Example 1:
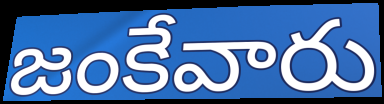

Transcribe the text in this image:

జంకేవారు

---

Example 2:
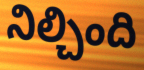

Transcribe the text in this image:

నిల్చింది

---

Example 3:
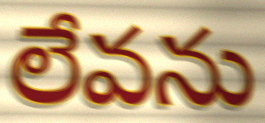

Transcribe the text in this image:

లేవను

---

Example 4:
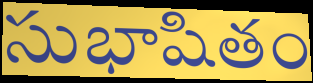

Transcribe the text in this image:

సుభాషితం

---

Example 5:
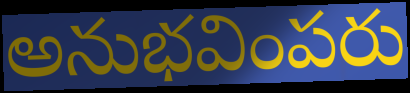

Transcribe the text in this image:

అనుభవింపరు